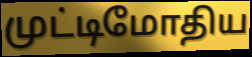
முட்டிமோதிய